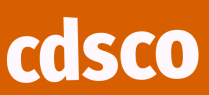
cdsco